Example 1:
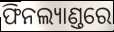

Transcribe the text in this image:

ଫିନଲ୍ୟାଣ୍ଡରେ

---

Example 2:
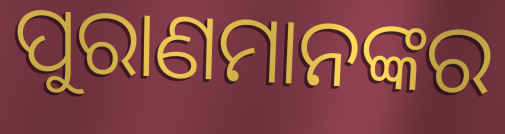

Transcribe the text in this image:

ପୁରାଣମାନଙ୍କର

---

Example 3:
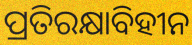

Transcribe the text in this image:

ପ୍ରତିରକ୍ଷାବିହୀନ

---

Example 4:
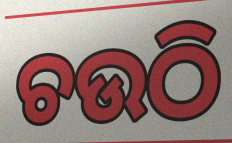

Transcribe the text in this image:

ଚଉଠି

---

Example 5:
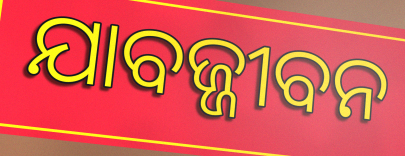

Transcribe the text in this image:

ଯାବଜ୍ଜୀବନ